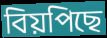
বিয়পিছে